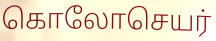
கொலோசெயர்